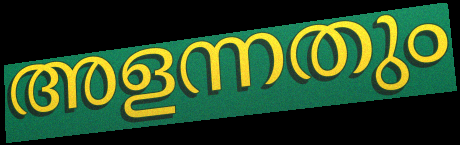
അളന്നതും